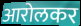
आरोलकर